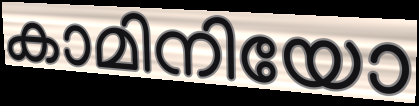
കാമിനിയോ